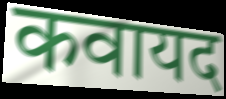
कवायद